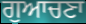
ਗੁਆਚਣਾ